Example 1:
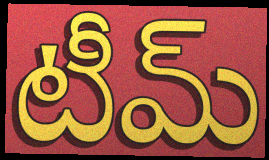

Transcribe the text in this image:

టీమ్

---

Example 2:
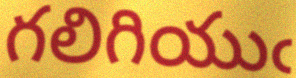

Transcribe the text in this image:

గలిగియుఁ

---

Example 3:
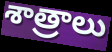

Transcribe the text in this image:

శాత్రాలు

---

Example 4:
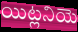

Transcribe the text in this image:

యిట్లనియె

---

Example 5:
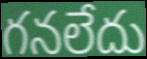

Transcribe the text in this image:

గనలేదు